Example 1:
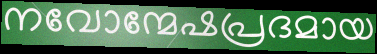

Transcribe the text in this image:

നവോന്മേഷപ്രദമായ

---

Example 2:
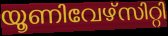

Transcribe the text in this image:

യൂണിവേഴ്സിറ്റി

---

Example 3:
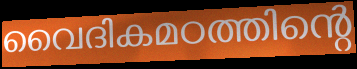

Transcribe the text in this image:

വൈദികമഠത്തിന്റെ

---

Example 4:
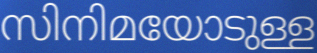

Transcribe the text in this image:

സിനിമയോടുള്ള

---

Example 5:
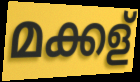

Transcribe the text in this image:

മക്കള്